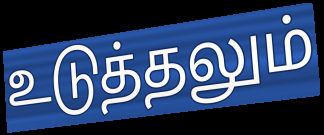
உடுத்தலும்